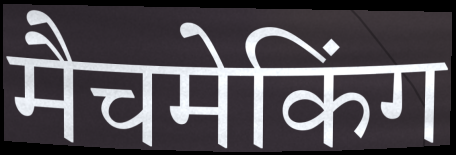
मैचमेकिंग